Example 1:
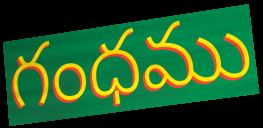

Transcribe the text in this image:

గంధము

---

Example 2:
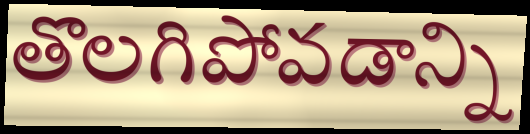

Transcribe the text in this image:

తొలగిపోవడాన్ని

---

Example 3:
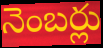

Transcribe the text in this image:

నెంబర్లు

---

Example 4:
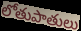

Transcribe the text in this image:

లోతుపాతులు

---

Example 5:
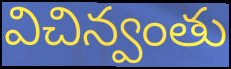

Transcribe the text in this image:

విచిన్వంతు